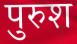
पुरुश